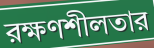
রক্ষণশীলতার